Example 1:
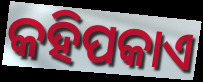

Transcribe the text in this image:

କହିପକାଏ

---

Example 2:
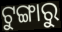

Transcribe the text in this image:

ଟୁଙ୍ଗାରୁ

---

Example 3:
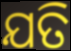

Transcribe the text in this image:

ଯତି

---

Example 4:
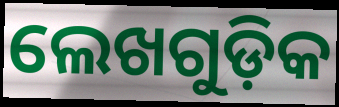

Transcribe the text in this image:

ଲେଖଗୁଡ଼ିକ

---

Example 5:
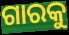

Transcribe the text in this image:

ଗାରକୁ